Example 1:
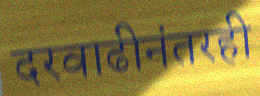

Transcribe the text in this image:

दरवाढीनंतरही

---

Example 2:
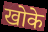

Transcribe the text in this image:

खोके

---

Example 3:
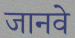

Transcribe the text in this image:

जानवे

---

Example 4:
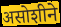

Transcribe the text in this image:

असोशीने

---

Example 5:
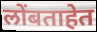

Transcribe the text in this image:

लोंबताहेत